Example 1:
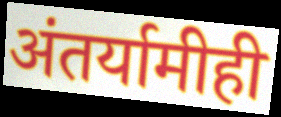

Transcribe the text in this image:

अंतर्यामीही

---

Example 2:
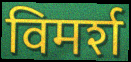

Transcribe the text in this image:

विमर्श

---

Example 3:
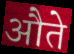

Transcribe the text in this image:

औते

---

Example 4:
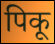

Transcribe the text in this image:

पिकू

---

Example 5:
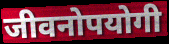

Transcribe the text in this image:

जीवनोपयोगी